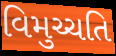
વિમુચ્ચતિ